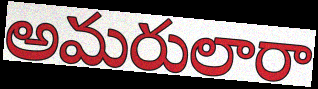
అమరులారా